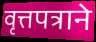
वृत्तपत्राने